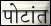
पोटांत